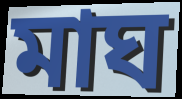
মাঘ